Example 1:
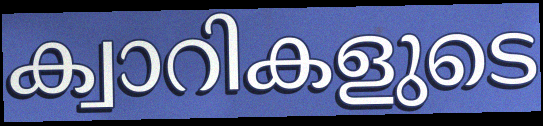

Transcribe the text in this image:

ക്വാറികളുടെ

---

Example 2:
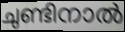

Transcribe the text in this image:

ചുണ്ടിനാൽ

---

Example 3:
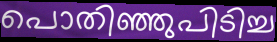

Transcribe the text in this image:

പൊതിഞ്ഞുപിടിച്ച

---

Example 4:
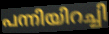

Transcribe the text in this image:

പന്നിയിറച്ചി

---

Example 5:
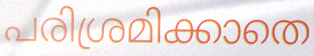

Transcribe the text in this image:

പരിശ്രമിക്കാതെ